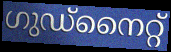
ഗുഡ്നൈറ്റ്